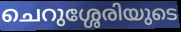
ചെറുശ്ശേരിയുടെ